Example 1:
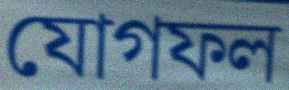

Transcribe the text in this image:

যোগফল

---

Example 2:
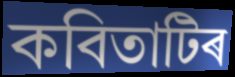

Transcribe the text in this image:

কবিতাটিৰ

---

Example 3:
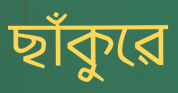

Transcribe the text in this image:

ছাঁকুৱে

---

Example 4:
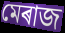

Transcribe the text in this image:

মেৰাজ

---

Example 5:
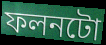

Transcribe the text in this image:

ফলনটো